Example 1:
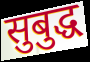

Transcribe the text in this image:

सुबुद्ध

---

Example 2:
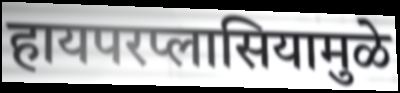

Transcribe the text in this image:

हायपरप्लासियामुळे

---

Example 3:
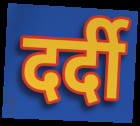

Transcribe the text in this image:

दर्दी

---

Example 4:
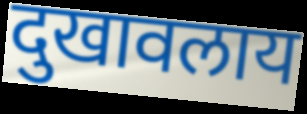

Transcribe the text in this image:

दुखावलाय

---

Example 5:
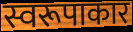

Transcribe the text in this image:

स्वरूपाकार